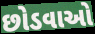
છોડવાઓ